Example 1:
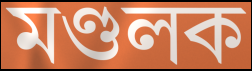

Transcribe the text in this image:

মণ্ডলক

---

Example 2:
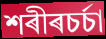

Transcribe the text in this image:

শৰীৰচৰ্চা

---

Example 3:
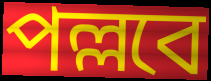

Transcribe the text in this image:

পল্লবে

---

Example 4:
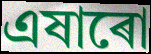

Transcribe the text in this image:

এষাৰো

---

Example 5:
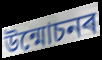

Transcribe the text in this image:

উন্মোচনৰ